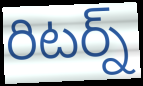
రిటర్న్